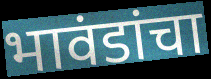
भावंडांचा